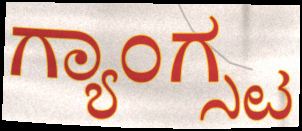
ಗ್ಯಾಂಗ್ಸ್ಟ